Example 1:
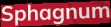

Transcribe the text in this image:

Sphagnum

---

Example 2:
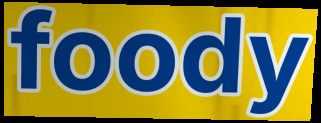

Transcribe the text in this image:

foody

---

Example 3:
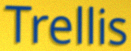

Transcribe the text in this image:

Trellis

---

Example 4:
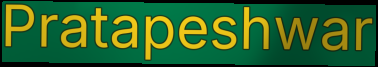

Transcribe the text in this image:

Pratapeshwar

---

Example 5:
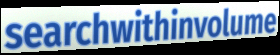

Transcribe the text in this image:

searchwithinvolume